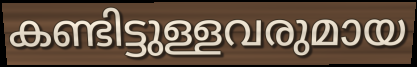
കണ്ടിട്ടുള്ളവരുമായ